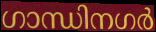
ഗാന്ധിനഗർ